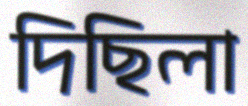
দিছিলা